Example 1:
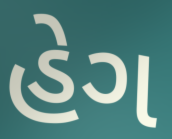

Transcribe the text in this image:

હેગ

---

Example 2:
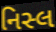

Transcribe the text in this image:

નિસ્લ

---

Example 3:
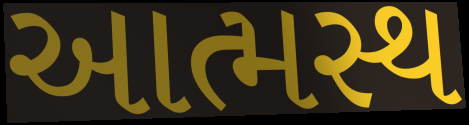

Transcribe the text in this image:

આત્મસ્થ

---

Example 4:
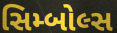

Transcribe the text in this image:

સિમ્બોલ્સ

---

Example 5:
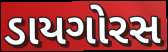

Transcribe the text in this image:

ડાયગોરસ